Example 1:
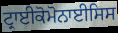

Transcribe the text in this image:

ਟ੍ਰਾਈਕੋਮੋਨਾਈਸਿਸ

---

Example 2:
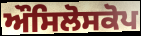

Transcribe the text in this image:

ਔਸਿਲੋਸਕੋਪ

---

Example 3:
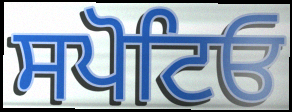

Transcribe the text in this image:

ਸਪੋਟਿਓ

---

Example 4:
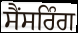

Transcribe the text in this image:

ਸੈਂਸਰਿੰਗ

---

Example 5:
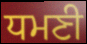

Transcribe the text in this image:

ਧਮਣੀ